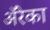
ॲरेका